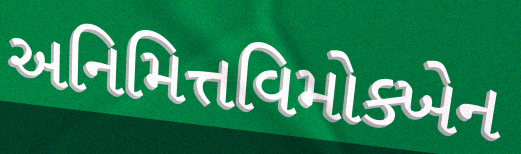
અનિમિત્તવિમોક્ખેન